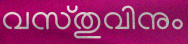
വസ്തുവിനും